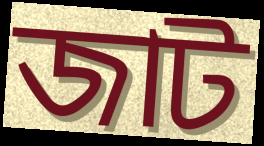
জাট